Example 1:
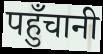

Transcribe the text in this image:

पहुँचानी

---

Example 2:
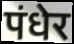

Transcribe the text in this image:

पंधेर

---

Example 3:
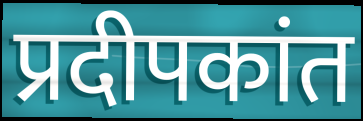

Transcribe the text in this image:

प्रदीपकांत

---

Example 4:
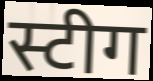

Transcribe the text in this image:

स्टीग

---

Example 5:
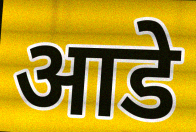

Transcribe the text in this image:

आडे